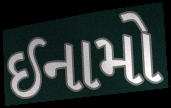
ઈનામો